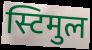
स्टिमुल